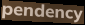
pendency